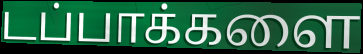
டப்பாக்களை